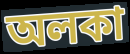
অলকা